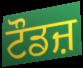
ਟੌਡਜ਼